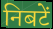
निबटें